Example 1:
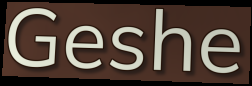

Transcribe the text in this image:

Geshe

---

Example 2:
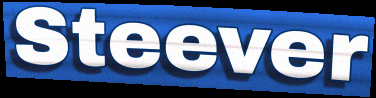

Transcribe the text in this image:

Steever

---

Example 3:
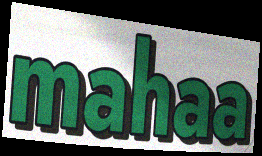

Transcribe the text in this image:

mahaa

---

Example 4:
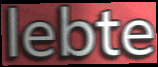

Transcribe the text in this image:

lebte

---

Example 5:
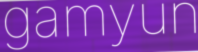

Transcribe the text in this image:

gamyun